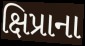
ક્ષિપ્રાના